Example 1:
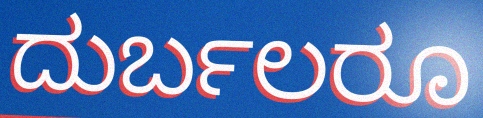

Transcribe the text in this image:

ದುರ್ಬಲರೂ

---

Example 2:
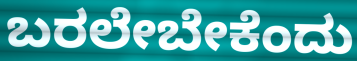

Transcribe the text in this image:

ಬರಲೇಬೇಕೆಂದು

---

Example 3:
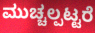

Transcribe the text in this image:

ಮುಚ್ಚಲ್ಪಟ್ಟರೆ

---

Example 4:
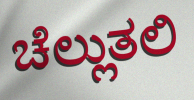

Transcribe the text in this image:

ಚೆಲ್ಲುತಲಿ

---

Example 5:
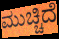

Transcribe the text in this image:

ಮುಚ್ಚಿದೆ